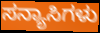
ಸನ್ಯಾಸಿಗಳು